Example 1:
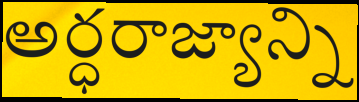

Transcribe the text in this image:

అర్ధరాజ్యాన్ని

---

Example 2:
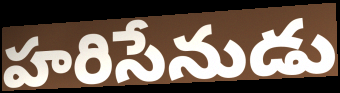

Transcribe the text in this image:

హరిసేనుడు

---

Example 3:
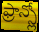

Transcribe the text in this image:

ఫ్రాన్స్లో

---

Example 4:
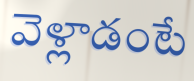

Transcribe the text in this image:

వెళ్లాడంటే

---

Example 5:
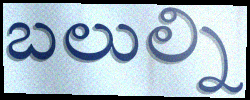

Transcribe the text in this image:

బలుల్ని